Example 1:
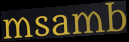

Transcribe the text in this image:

msamb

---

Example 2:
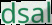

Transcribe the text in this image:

dsal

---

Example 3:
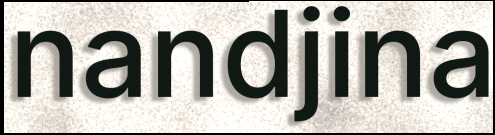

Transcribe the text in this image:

nandjina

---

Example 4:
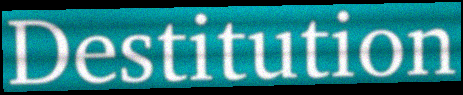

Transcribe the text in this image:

Destitution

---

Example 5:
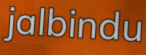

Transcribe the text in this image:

jalbindu